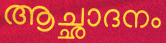
ആച്ഛാദനം